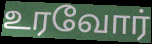
உரவோர்